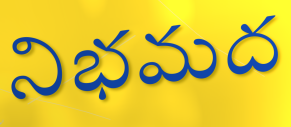
నిభమద